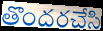
తొందరచేసి